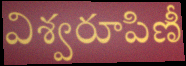
విశ్వరూపిణీ